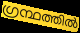
ഗ്രന്ഥത്തിൽ